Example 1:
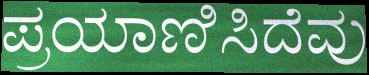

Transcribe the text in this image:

ಪ್ರಯಾಣಿಸಿದೆವು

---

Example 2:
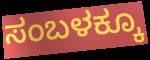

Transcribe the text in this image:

ಸಂಬಳಕ್ಕೂ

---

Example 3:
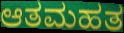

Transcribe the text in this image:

ಆತಮಹತ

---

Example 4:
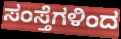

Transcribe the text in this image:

ಸಂಸ್ತೆಗಳಿಂದ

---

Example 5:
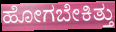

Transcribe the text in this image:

ಹೋಗಬೇಕಿತ್ತು